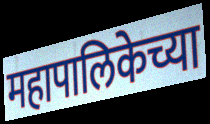
महापालिकेच्या